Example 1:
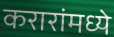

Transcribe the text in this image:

करारांमध्ये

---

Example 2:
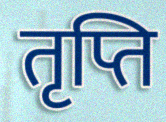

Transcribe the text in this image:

तृप्ति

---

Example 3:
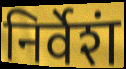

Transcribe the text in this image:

निर्वेशं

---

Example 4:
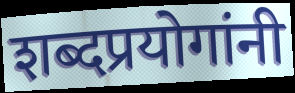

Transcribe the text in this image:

शब्दप्रयोगांनी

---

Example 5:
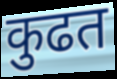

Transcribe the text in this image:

कुढत